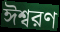
ঈশ্বরণ